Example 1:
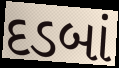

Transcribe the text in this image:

દડબાં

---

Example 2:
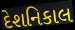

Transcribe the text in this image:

દેશનિકાલ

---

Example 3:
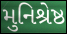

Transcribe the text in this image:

મુનિશ્રેષ્ઠ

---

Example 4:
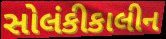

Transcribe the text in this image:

સોલંકીકાલીન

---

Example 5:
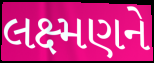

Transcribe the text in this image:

લક્ષ્મણને